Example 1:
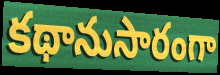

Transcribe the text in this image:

కథానుసారంగా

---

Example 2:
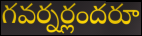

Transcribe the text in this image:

గవర్నర్లందరూ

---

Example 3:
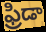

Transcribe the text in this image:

ఫ్రిడా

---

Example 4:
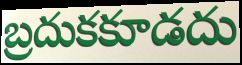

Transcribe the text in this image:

బ్రదుకకూడదు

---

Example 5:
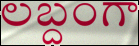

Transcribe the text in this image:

లబ్దంగా